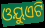
ଓୟୁଏଟି